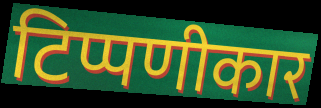
टिप्पणीकार